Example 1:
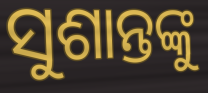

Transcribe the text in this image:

ସୁଶାନ୍ତଙ୍କୁ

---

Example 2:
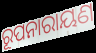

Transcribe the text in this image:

ରୂପନାରାୟଣ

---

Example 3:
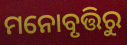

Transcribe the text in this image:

ମନୋବୃତ୍ତିରୁ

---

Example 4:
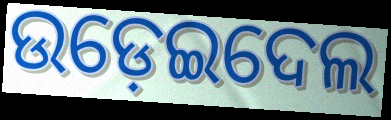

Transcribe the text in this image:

ଉଡ଼େଇଦେଲ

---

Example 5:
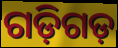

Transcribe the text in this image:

ଗଡ଼ିଗଡ଼